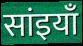
सांइयाँ